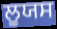
ਲੂਯਸ